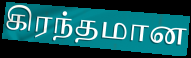
கிரந்தமான